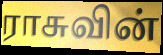
ராசுவின்